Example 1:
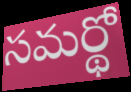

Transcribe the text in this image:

సమర్థో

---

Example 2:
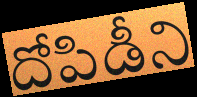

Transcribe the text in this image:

దోపిడీని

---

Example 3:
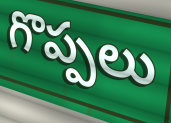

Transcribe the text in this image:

గొప్పలు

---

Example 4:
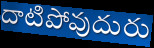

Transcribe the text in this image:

దాటిపోవుదురు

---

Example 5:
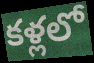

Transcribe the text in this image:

కళ్లలో